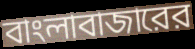
বাংলাবাজারের